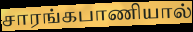
சாரங்கபாணியால்